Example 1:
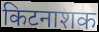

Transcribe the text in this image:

किटनाशक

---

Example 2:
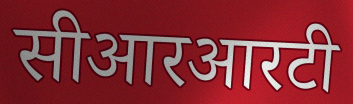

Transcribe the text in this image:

सीआरआरटी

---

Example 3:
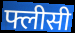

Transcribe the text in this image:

फ्लीसी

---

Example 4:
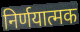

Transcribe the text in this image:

निर्णयात्मक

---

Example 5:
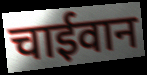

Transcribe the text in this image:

चाईवान